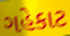
ગહેકાટ